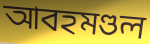
আবহমণ্ডল